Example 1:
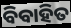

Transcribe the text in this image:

ବିବାହିତ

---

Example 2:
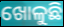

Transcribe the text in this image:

ଖୋଳୁଛି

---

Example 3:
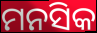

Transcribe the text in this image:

ମନସିକ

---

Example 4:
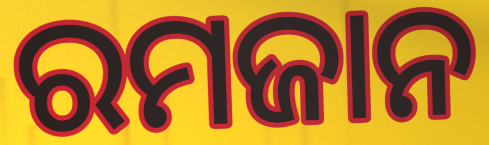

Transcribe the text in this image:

ରମଜାନ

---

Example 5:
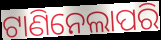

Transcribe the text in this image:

ଟାଣିନେଲାପରି